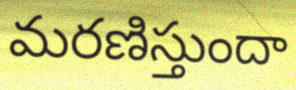
మరణిస్తుందా